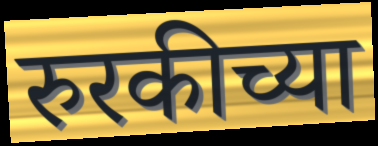
रुरकीच्या